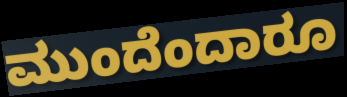
ಮುಂದೆಂದಾರೂ